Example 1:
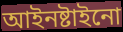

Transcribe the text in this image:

আইনষ্টাইনো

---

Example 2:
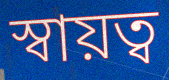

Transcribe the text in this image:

স্বায়ত্ব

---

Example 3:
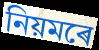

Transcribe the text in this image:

নিয়মৰে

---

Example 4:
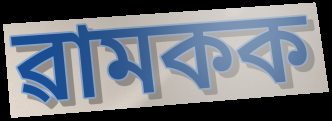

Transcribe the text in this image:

ৱামকক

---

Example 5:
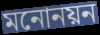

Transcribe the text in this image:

মনোনয়ন